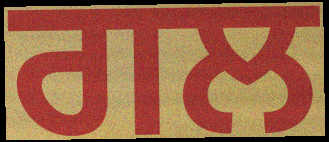
ਗਲ